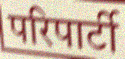
परिपार्टी